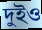
দুইও